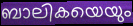
ബാലികയെയും